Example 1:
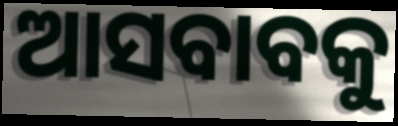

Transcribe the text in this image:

ଆସବାବକୁ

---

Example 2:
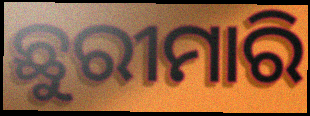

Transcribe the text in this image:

ଛୁରୀମାରି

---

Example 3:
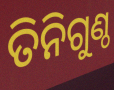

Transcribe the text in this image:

ତିନିଗୁଣ୍ଠ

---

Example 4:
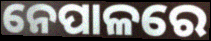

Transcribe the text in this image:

ନେପାଳରେ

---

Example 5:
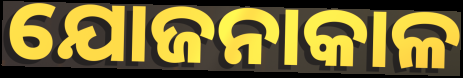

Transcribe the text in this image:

ଯୋଜନାକାଳ